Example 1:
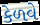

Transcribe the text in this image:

કેળવે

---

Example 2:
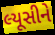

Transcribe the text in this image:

લ્યૂસીને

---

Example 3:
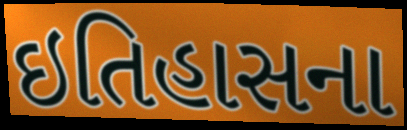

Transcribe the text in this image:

ઇતિહાસના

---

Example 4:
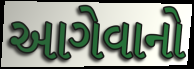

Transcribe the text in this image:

આગેવાનો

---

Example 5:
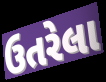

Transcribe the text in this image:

ઉતરેલા